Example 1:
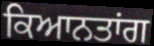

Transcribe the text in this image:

ਕਿਆਨਤਾਂਗ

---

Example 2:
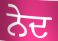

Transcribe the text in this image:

ਨੇਦ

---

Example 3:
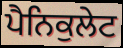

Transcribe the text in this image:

ਪੈਨਿਕੁਲੇਟ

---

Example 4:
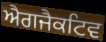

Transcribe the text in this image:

ਐਗਜੈਕਟਿਵ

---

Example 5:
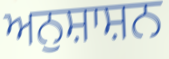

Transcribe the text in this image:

ਅਨੁਸ਼ਾਸ਼ਨ